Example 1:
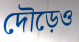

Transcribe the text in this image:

দৌড়েও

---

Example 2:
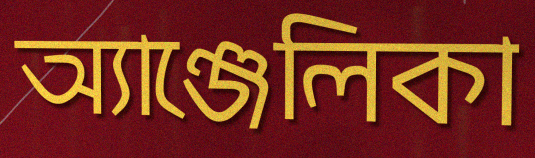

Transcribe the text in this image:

অ্যাঞ্জেলিকা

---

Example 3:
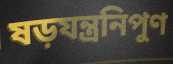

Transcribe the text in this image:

ষড়যন্ত্রনিপুণ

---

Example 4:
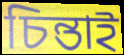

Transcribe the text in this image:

চিন্তাই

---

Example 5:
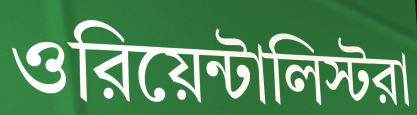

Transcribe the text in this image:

ওরিয়েন্টালিস্টরা